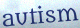
autism